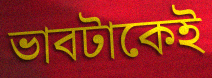
ভাবটাকেই